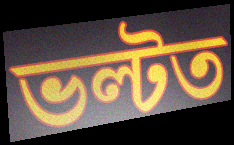
ভল্টত